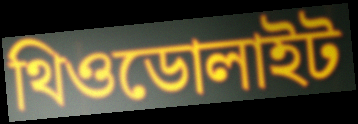
থিওডোলাইট